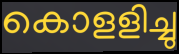
കൊളളിച്ചു